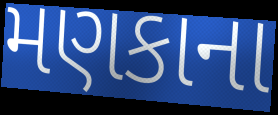
મણકાના